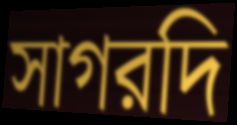
সাগরদি